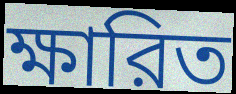
ক্ষারিত